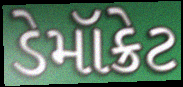
ડેમૉક્રેટ